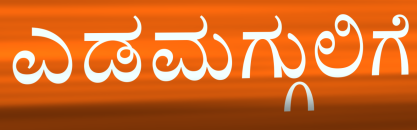
ಎಡಮಗ್ಗುಲಿಗೆ